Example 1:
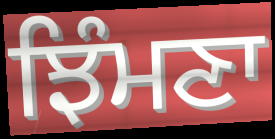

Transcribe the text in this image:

ਝਿੰਮਣਾ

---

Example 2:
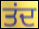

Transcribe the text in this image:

ਤਂਦ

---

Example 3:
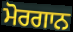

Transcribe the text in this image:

ਮੋਰਗਾਨ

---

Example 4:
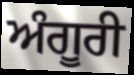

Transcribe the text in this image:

ਅੰਗੂਰੀ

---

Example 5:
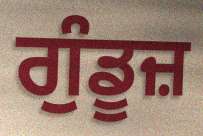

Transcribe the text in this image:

ਗੁੰਡੂਜ਼